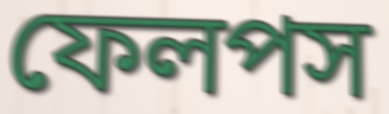
ফেলপস